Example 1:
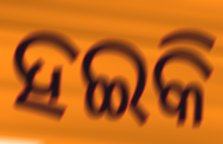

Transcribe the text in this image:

ହଇକି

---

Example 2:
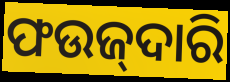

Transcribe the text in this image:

ଫଉଜ୍‌ଦାରି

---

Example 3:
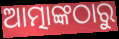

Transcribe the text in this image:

ଆତ୍ମାଙ୍କଠାରୁ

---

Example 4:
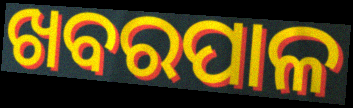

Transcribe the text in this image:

ଖବରପାଳ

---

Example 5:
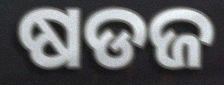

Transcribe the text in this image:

ଷଡଜ